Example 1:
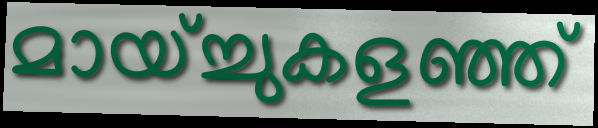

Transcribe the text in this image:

മായ്ച്ചുകളഞ്ഞ്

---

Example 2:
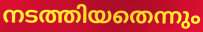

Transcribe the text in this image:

നടത്തിയതെന്നും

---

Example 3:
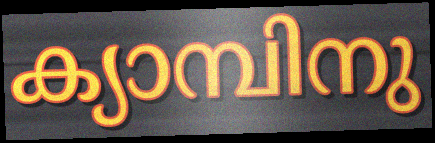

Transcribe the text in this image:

ക്യാമ്പിനു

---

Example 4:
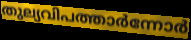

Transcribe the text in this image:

തുല്യവിപത്താർന്നോർ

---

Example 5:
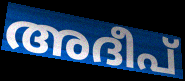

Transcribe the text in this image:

അദീപ്